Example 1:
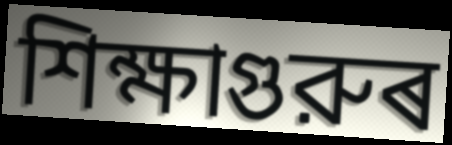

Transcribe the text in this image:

শিক্ষাগুৰুৰ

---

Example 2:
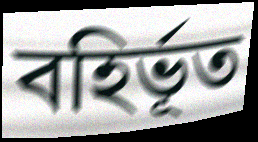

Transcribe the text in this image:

বহিৰ্ভূত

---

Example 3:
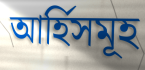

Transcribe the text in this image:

আৰ্হিসমূহ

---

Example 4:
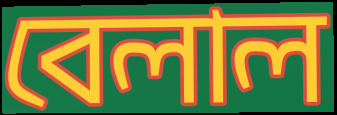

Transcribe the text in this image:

বেলাল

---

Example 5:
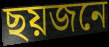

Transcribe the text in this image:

ছয়জনে